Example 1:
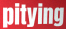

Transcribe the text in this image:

pitying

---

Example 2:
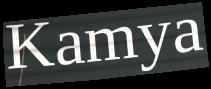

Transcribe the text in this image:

Kamya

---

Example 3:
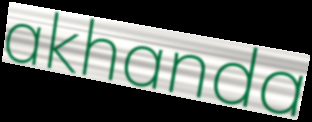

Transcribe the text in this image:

akhanda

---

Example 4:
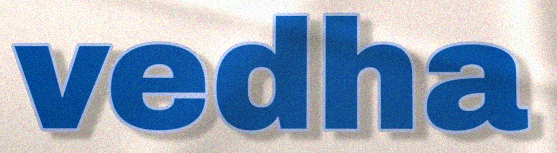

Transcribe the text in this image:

vedha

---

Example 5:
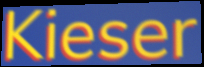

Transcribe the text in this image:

Kieser